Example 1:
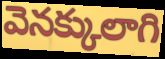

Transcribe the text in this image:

వెనక్కులాగి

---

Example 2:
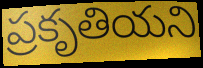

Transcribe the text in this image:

ప్రకృతియని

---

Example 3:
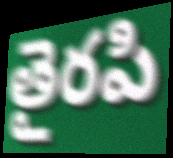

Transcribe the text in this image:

తైరపి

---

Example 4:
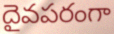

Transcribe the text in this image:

దైవపరంగా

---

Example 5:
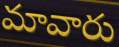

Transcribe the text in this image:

మావారు